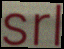
srl